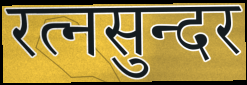
रत्नसुन्दर